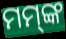
ମମ୍‍ଙ୍କ